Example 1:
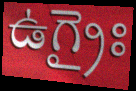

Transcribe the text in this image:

ఉగ్రైః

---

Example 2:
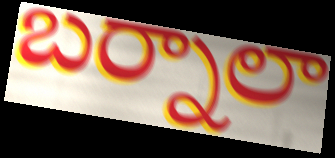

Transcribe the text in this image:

బర్నాలా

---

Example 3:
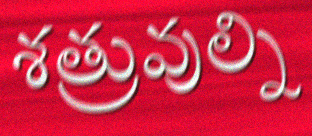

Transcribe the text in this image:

శత్రువుల్ని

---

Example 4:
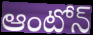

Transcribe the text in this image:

ఆంటోన్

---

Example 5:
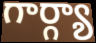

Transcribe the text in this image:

గార్గ్యా